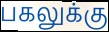
பகலுக்கு